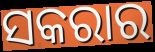
ସକରାର